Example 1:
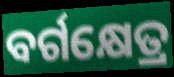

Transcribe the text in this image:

ବର୍ଗକ୍ଷେତ୍ର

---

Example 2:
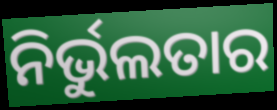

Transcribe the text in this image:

ନିର୍ଭୁଲତାର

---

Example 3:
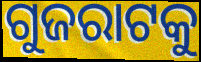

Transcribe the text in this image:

ଗୁଜରାଟକୁ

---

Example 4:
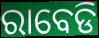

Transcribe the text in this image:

ରାବେଡି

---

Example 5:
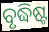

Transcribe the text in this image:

ବୃଦ୍ଧିଷ୍ଟ